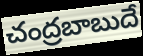
చంద్రబాబుదే